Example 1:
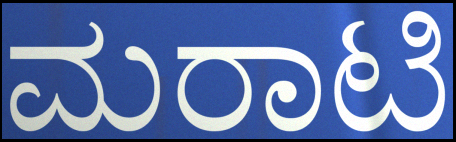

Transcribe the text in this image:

ಮರಾಟಿ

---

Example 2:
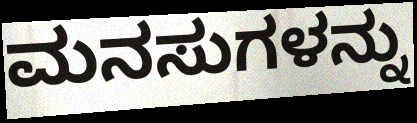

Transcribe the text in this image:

ಮನಸುಗಳನ್ನು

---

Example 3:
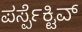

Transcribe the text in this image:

ಪರ್ಸ್ಪೆಕ್ಟಿವ್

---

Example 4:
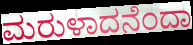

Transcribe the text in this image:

ಮರುಳಾದನೆಂದಾ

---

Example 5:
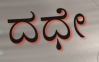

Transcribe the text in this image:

ದಧೇ